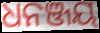
ଧନଞ୍ଜୟ